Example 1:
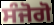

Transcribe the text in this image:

ਸੰਜੋਗੋ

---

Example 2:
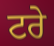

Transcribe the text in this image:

ਟਰੇ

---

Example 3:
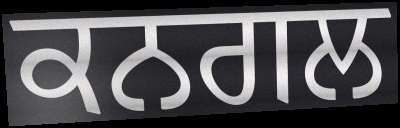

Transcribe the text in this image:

ਕਨਗਲ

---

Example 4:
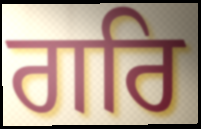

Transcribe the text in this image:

ਗਰਿ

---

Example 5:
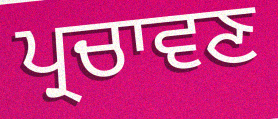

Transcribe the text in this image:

ਪ੍ਰਚਾਵਣ